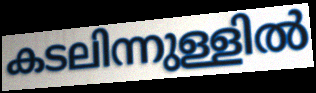
കടലിന്നുള്ളിൽ